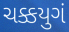
ચક્કયુગં